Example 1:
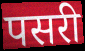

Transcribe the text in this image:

पसरी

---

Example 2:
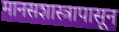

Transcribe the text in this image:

मानसशास्त्रापासून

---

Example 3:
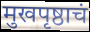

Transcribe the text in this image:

मुखपृष्ठाचं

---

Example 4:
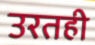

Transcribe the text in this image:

उरतही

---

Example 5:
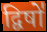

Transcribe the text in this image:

द्विषो॑